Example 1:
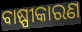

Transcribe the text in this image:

ବାଷ୍ପୀକାରଣ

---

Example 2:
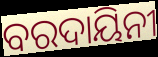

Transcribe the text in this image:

ବରଦାୟିନୀ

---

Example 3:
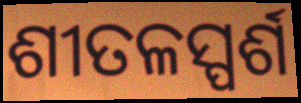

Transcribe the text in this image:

ଶୀତଳସ୍ପର୍ଶ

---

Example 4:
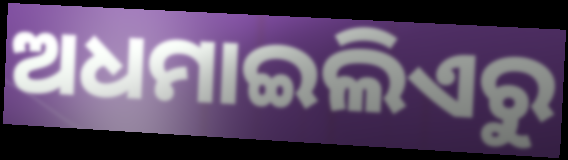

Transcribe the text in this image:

ଅଧମାଇଲିଏରୁ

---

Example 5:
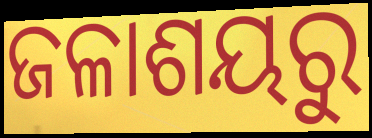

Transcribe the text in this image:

ଜଳାଶୟରୁ